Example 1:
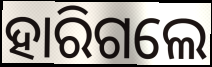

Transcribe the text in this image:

ହାରିଗଲେ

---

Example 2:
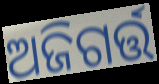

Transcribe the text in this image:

ଅଜିଗର୍ତ୍ତ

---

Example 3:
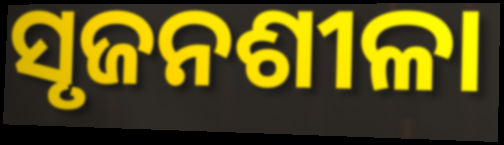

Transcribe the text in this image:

ସୃଜନଶୀଳା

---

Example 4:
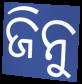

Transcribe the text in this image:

ଜିନୁ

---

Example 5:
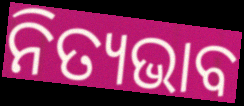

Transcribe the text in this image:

ନିତ୍ୟଭାବ